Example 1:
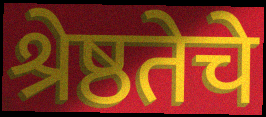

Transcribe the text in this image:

श्रेष्ठतेचे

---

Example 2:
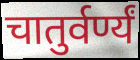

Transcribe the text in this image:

चातुर्वर्ण्यं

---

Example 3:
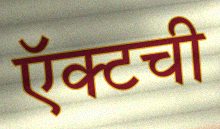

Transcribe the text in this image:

ऍक्टची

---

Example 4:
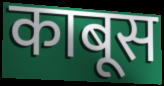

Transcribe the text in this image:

काबूस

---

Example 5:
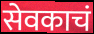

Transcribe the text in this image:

सेवकाचं